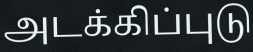
அடக்கிப்புடு